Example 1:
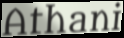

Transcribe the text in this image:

Athani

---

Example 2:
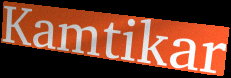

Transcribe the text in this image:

Kamtikar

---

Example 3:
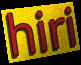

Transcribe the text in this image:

hiri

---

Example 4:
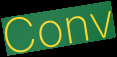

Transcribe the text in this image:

Conv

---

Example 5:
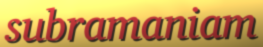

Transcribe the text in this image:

subramaniam